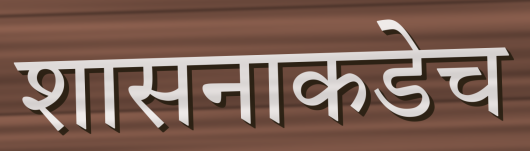
शासनाकडेच